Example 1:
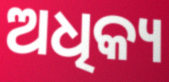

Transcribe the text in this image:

ଅଧିକ୍ୟ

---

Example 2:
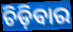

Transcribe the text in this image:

ଚିଡ଼ିବାର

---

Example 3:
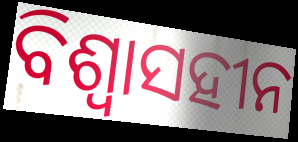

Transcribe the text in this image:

ବିଶ୍ୱାସହୀନ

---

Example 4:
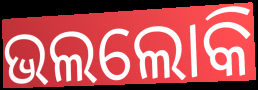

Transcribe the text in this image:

ଭଲଲୋକି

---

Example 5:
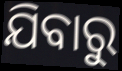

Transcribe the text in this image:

ଯିବାରୁ